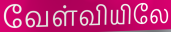
வேள்வியிலே